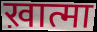
ख़ात्मा